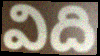
విది